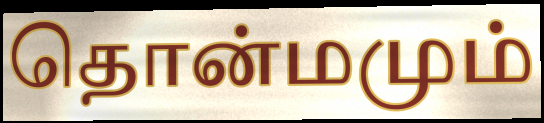
தொன்மமும்